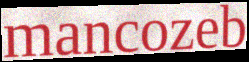
mancozeb